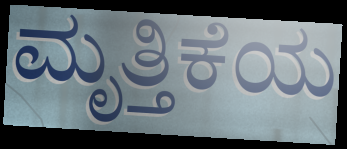
ಮೃತ್ತಿಕೆಯ